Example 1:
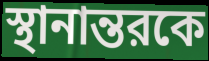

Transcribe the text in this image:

স্থানান্তরকে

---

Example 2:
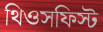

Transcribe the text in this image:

থিওসফিস্ট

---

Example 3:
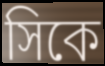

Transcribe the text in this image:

সিকে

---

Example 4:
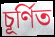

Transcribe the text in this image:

চূর্ণিত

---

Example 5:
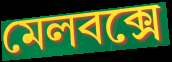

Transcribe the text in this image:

মেলবক্সে